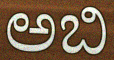
ಅಬಿ